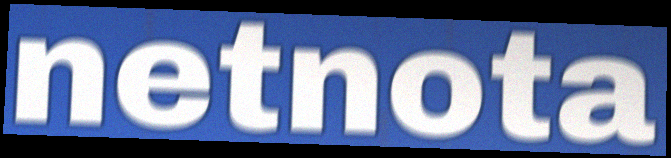
netnota